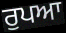
ਰੁਪਆ